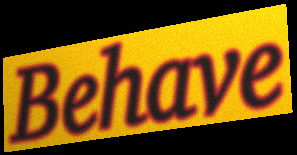
Behave